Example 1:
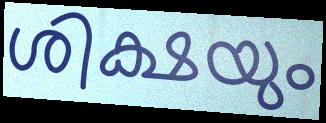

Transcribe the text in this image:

ശിക്ഷയും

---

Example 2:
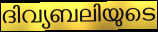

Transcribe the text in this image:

ദിവ്യബലിയുടെ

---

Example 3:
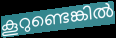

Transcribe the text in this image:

കൂറുണ്ടെങ്കിൽ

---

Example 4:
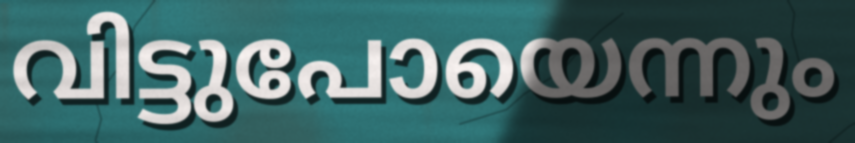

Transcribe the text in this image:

വിട്ടുപോയെന്നും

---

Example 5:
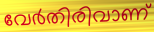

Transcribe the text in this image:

വേർതിരിവാണ്